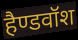
हैण्डवॉश